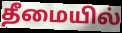
தீமையில்